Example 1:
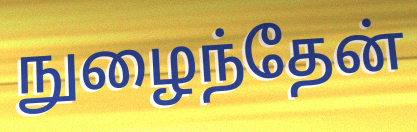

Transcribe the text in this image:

நுழைந்தேன்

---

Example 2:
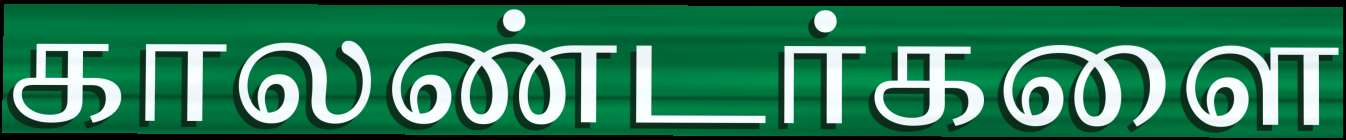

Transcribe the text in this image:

காலண்டர்களை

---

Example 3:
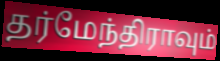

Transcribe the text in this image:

தர்மேந்திராவும்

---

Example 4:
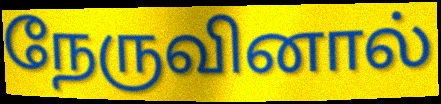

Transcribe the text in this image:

நேருவினால்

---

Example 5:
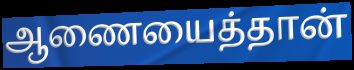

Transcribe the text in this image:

ஆணையைத்தான்